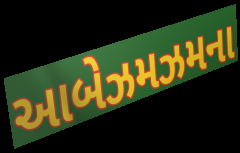
આબેઝમઝમના